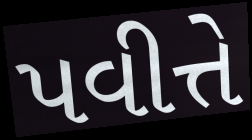
પવીત્તે